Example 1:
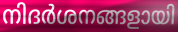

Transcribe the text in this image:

നിദർശനങ്ങളായി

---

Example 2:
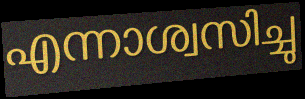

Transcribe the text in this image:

എന്നാശ്വസിച്ചു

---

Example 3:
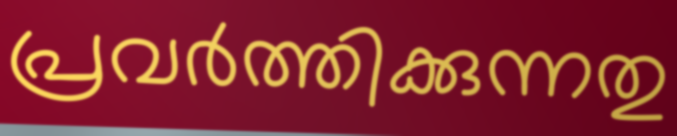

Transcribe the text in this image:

പ്രവർത്തിക്കുന്നതു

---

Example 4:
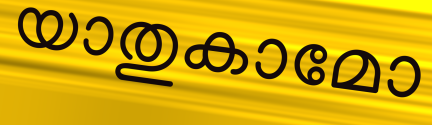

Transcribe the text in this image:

യാതുകാമോ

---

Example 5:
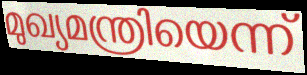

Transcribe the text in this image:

മുഖ്യമന്ത്രിയെന്ന്